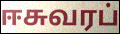
ஈசுவரப்